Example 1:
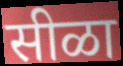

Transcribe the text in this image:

सीळा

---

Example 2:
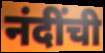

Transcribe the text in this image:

नंदींची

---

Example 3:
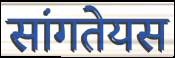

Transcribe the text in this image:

सांगतेयस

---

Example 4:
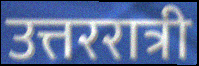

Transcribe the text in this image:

उत्तररात्री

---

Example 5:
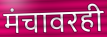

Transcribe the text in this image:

मंचावरही